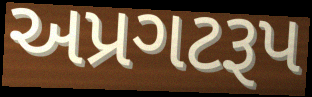
અપ્રગટરૂપ